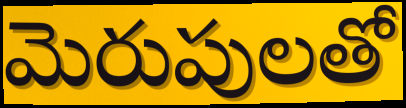
మెరుపులతో